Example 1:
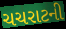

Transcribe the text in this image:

ચચરાટની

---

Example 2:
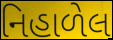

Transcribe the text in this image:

નિહાળેલ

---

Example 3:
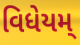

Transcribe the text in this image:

વિધેયમ્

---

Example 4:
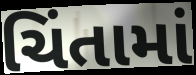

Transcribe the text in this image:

ચિંતામાં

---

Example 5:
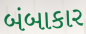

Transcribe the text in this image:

બંબાકાર